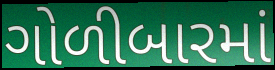
ગોળીબારમાં